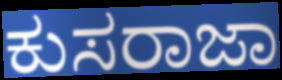
ಕುಸರಾಜಾ